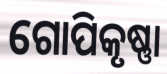
ଗୋପିକୃଷ୍ଣା